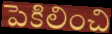
పెకిలించి